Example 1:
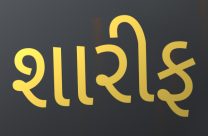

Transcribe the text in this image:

શારીફ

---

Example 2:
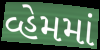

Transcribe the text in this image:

વ્હેમમાં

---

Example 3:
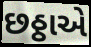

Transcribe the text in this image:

છઠ્ઠાએ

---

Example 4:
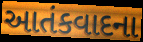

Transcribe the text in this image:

આતંકવાદના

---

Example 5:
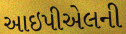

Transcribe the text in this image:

આઇપીએલની